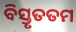
ବିସ୍ତୃତତମ